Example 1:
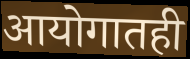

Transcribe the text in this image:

आयोगातही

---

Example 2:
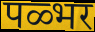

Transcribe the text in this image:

पळ्भर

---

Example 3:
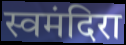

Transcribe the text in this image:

स्वमंदिरा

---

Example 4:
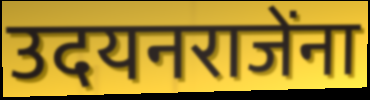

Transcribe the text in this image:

उदयनराजेंना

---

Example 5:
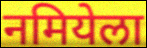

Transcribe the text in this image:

नमियेला